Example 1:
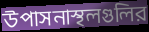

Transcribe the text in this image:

উপাসনাস্থলগুলির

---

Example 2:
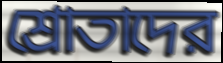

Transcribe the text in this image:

শ্রোতাদের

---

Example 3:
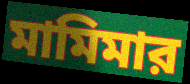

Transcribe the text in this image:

মামিমার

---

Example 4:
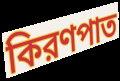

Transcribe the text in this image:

কিরণপাত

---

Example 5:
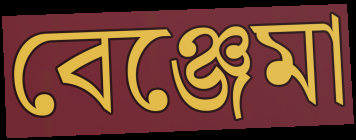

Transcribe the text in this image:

বেঞ্জেমা